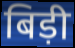
बिड़ी